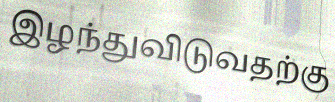
இழந்துவிடுவதற்கு